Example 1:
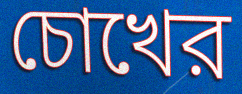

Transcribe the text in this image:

চোখের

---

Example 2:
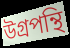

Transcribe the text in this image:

উগ্রপন্থি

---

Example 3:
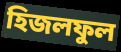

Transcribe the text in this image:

হিজলফুল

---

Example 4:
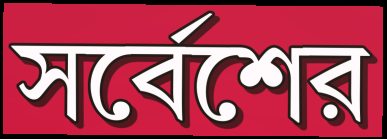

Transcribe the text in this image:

সর্বেশের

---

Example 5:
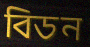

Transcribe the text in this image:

বিডন